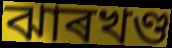
ঝাৰখণ্ড